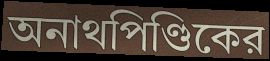
অনাথপিণ্ডিকের